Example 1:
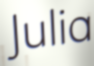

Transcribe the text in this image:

Julia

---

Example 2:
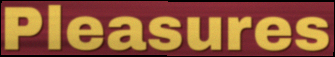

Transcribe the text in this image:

Pleasures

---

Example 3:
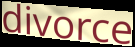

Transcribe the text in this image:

divorce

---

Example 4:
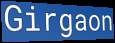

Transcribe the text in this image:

Girgaon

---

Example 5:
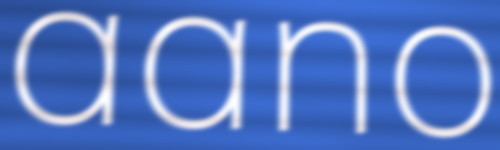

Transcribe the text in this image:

aano